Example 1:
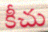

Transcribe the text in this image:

కీచు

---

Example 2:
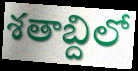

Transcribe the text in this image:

శతాబ్దిలో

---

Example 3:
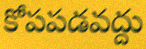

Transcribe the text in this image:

కోపపడవద్దు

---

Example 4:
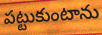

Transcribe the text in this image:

పట్టుకుంటాను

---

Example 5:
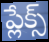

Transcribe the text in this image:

ప్లేక్స్